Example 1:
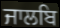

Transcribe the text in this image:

ਜਾਲਬਿ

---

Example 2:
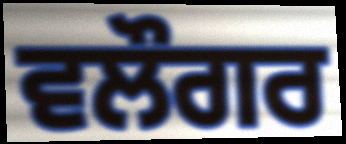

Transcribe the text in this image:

ਵਲੌਗਰ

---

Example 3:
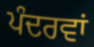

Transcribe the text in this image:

ਪੰਦਰਵਾਂ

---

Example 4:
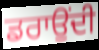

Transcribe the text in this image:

ਡਰਾਉਂਦੀ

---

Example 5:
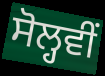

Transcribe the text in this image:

ਸੋਲ੍ਹਵੀਂ